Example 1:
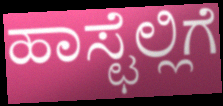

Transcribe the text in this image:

ಹಾಸ್ಟೆಲ್ಲಿಗೆ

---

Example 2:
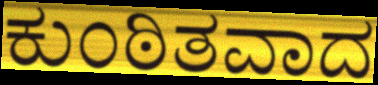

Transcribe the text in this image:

ಕುಂಠಿತವಾದ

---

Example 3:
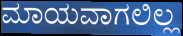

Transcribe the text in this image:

ಮಾಯವಾಗಲಿಲ್ಲ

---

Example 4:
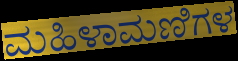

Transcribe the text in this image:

ಮಹಿಳಾಮಣಿಗಳ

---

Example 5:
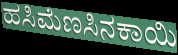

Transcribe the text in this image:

ಹಸಿಮೆಣಸಿನಕಾಯಿ